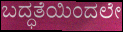
ಬದ್ಧತೆಯಿಂದಲೇ